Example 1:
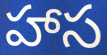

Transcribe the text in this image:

హాస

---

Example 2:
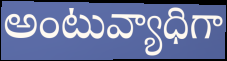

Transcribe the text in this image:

అంటువ్యాధిగా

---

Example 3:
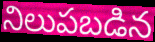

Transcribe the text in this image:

నిలుపబడిన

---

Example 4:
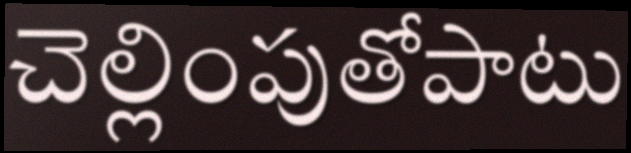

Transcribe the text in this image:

చెల్లింపుతోపాటు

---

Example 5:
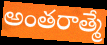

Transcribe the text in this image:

అంతరాత్మే